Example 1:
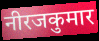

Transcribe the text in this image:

नीरजकुमार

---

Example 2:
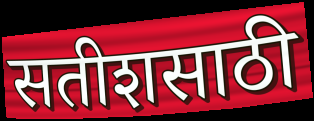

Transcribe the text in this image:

सतीशसाठी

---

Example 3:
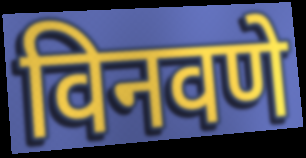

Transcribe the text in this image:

विनवणे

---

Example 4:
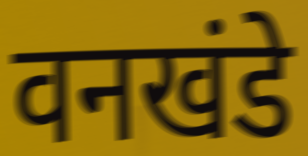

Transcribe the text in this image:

वनखंडे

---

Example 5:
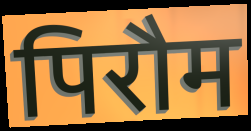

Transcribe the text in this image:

पिरौम